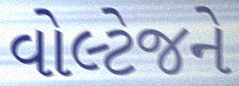
વોલ્ટેજને